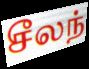
சீலந்